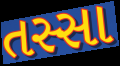
તસ્સા